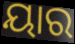
ୟାର